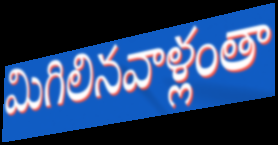
మిగిలినవాళ్లంతా